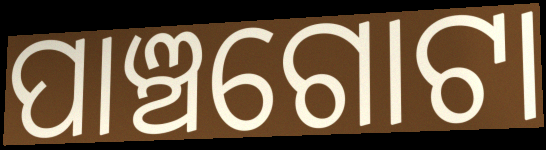
ପାଞ୍ଚଗୋଟା